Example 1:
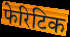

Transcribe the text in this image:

फेरिटिक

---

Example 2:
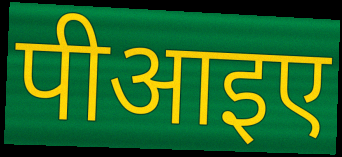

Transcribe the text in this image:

पीआइए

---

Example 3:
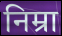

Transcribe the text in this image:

निम्रा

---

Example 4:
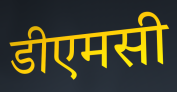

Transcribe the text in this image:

डीएमसी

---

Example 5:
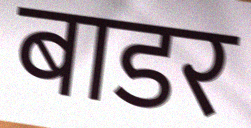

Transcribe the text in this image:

बाडर